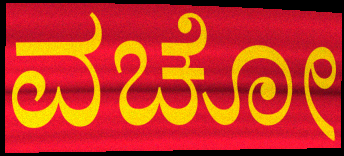
ವಚೋ